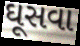
ઘૂસવા